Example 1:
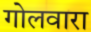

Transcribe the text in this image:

गोलवारा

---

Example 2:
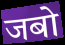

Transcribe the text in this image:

जबो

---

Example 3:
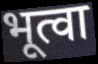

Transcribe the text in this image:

भूत्वा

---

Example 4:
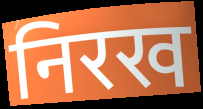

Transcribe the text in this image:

निरख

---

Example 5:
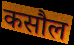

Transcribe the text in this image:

कसौल